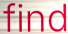
find